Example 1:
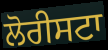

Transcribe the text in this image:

ਲੋਰੀਸਟਾ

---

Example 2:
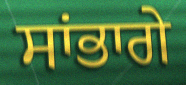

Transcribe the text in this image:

ਸਾਂਭਾਗੇ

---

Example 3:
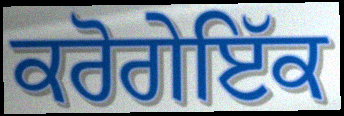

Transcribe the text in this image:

ਕਰੋਗੇਇੱਕ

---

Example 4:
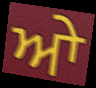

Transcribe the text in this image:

ਆੇ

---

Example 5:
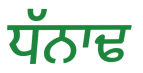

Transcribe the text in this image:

ਧੱਨਾਢ